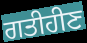
ਗਤੀਹੀਣ